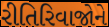
રીતિરિવાજોને